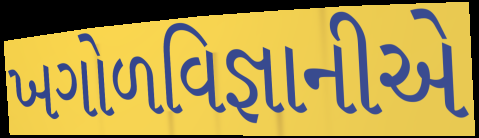
ખગોળવિજ્ઞાનીએ